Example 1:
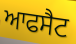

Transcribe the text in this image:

ਆਫਸੈਟ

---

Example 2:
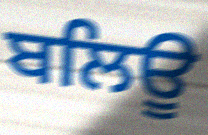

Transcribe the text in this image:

ਬਲਿਊ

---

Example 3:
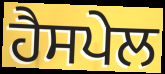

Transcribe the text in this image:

ਹੈਸਪੇਲ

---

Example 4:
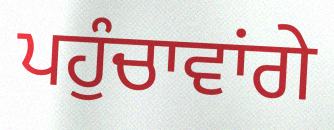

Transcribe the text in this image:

ਪਹੁੰਚਾਵਾਂਗੇ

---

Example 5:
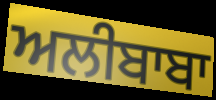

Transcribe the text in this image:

ਅਲੀਬਾਬਾ